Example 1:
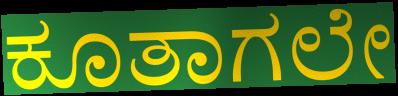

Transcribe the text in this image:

ಕೂತಾಗಲೇ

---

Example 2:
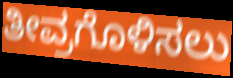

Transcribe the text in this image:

ತೀವ್ರಗೊಳಿಸಲು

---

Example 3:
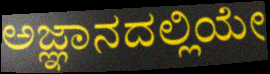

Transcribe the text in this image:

ಅಜ್ಞಾನದಲ್ಲಿಯೇ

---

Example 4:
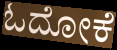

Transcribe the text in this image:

ಓದೋಕೆ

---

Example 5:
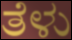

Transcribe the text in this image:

ತೆಳು